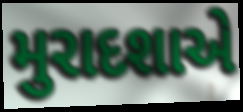
મુરાદશાએ